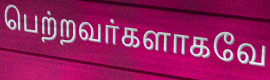
பெற்றவர்களாகவே